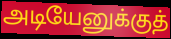
அடியேனுக்குத்